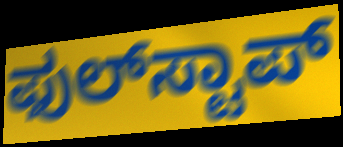
ಫುಲ್‍ಸ್ಟಾಪ್